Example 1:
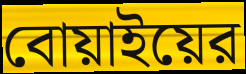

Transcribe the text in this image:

বোয়াইয়ের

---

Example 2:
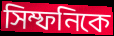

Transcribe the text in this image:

সিম্ফনিকে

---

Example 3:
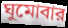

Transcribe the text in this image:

ঘুমোবার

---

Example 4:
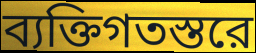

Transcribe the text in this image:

ব্যক্তিগতস্তরে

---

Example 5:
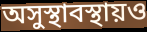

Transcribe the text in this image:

অসুস্থাবস্থায়ও